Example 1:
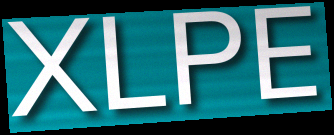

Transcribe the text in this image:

XLPE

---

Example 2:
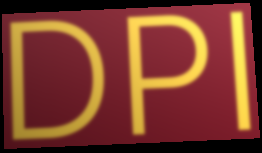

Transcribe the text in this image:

DPI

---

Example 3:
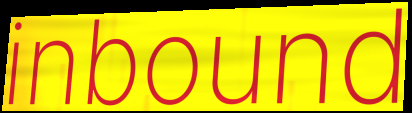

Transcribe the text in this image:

inbound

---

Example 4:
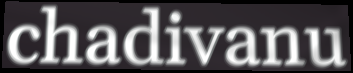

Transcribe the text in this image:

chadivanu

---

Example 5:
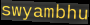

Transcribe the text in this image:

swyambhu